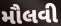
મૌલવી